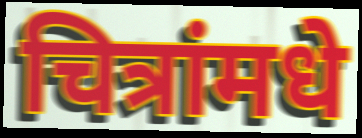
चित्रांमधे